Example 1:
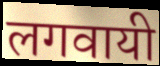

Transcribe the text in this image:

लगवायी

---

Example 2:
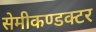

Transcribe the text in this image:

सेमीकण्डक्टर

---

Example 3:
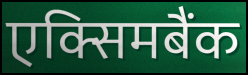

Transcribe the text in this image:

एक्सिमबैंक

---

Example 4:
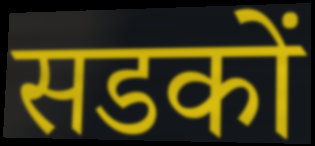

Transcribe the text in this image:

सडकों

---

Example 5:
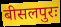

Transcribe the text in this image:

बीसलपुरः